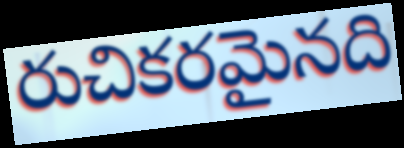
రుచికరమైనది